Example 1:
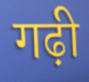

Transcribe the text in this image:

गढ़ी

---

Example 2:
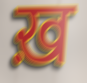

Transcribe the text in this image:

ख़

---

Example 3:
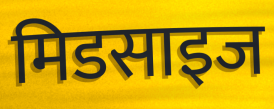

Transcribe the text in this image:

मिडसाइज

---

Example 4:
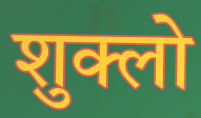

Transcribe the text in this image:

शुक्लो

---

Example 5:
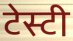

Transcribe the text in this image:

टेस्टी